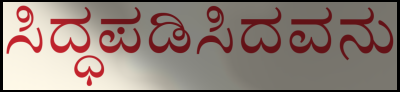
ಸಿದ್ಧಪಡಿಸಿದವನು